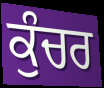
ਕੁੰਚਰ